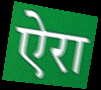
ऐरा